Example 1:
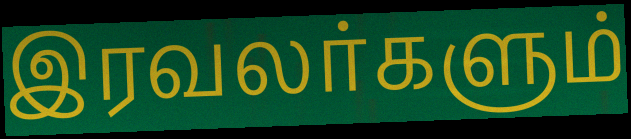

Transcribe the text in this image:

இரவலர்களும்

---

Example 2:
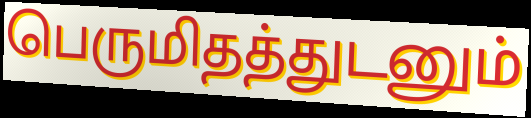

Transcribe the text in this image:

பெருமிதத்துடனும்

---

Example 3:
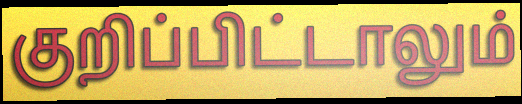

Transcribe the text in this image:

குறிப்பிட்டாலும்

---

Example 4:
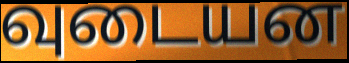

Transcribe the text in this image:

வுடையன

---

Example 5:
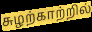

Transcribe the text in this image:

சுழற்காற்றில்